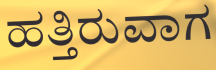
ಹತ್ತಿರುವಾಗ